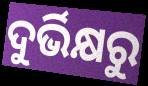
ଦୁର୍ଭିକ୍ଷରୁ